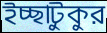
ইচ্ছাটুকুর